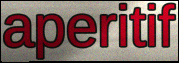
aperitif